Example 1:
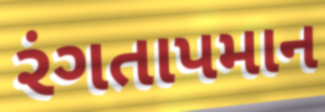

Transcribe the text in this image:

રંગતાપમાન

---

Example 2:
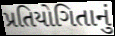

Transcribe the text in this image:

પ્રતિયોગિતાનું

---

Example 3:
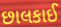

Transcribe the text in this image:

છાલકાઈ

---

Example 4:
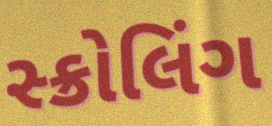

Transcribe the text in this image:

સ્ક્રોલિંગ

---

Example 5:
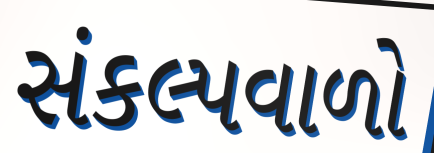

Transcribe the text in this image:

સંકલ્પવાળો